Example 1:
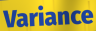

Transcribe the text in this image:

Variance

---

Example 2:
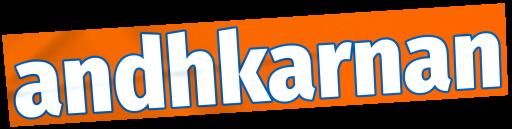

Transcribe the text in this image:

andhkarnan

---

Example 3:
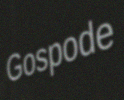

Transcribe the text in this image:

Gospode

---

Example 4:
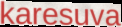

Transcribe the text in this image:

karesuva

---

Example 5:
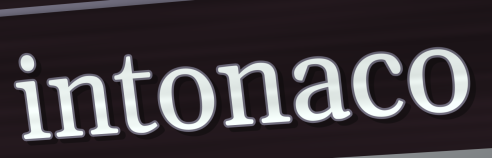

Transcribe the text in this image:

intonaco